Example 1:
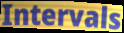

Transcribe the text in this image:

Intervals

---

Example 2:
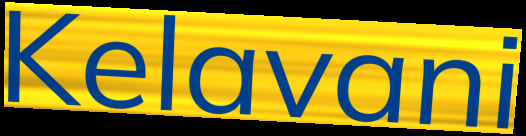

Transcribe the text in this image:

Kelavani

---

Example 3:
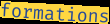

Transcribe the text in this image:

formations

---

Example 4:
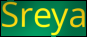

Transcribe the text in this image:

Sreya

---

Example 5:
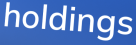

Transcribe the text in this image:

holdings